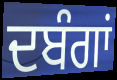
ਦਬੰਗਾਂ